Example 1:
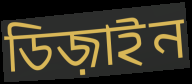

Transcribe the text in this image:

ডিজ়াইন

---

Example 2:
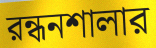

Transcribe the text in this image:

রন্ধনশালার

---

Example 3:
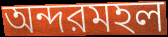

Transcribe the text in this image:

অন্দরমহল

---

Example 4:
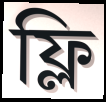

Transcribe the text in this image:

ফ্লি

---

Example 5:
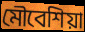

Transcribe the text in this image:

মৌবেশিয়া